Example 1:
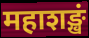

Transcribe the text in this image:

महाशङ्खं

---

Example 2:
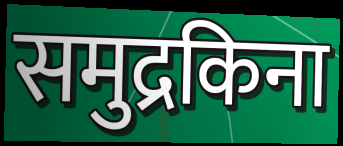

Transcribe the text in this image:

समुद्रकिना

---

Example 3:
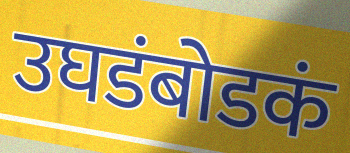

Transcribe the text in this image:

उघडंबोडकं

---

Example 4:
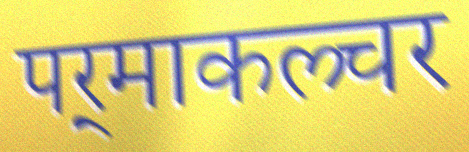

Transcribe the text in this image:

पर्माकल्चर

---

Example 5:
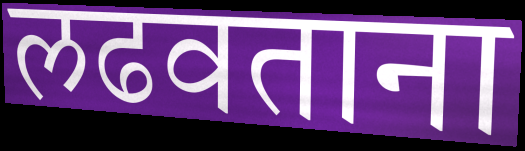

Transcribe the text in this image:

लढवताना